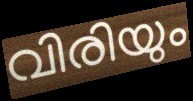
വിരിയും